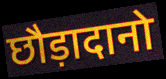
छौड़ादानो